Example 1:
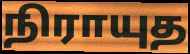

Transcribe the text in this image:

நிராயுத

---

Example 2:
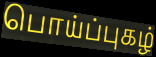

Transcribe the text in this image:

பொய்ப்புகழ்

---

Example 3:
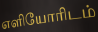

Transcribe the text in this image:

எளியோரிடம்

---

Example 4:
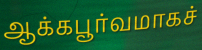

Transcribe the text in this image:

ஆக்கபூர்வமாகச்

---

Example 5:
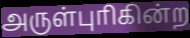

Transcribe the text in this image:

அருள்புரிகின்ற